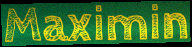
Maximin